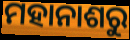
ମହାନାଶରୁ